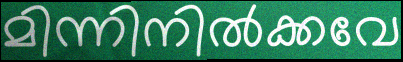
മിന്നിനിൽക്കവേ